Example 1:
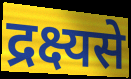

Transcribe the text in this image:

द्रक्ष्यसे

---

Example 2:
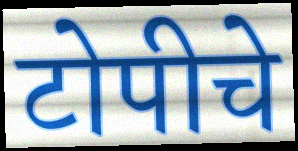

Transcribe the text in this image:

टोपीचे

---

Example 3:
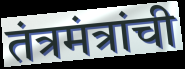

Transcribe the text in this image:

तंत्रमंत्रांची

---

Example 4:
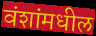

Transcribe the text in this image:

वंशांमधील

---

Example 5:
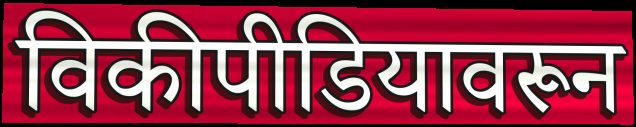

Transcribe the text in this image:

विकीपीडियावरून